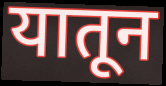
यातून